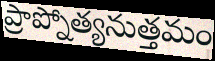
ప్రాప్నోత్యనుత్తమం